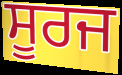
ਸੂਰਜ